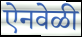
ऐनवेळी